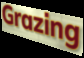
Grazing